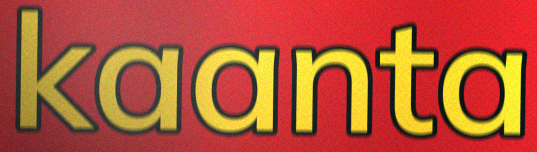
kaanta